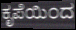
ಕೃಪೆಯಿಂದ